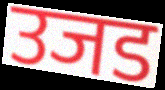
उजड